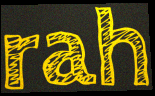
rah